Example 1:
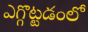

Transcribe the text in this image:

ఎగ్గొట్టడంలో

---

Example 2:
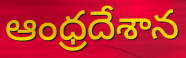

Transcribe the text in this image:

ఆంధ్రదేశాన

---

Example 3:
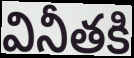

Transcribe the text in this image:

వినీతకి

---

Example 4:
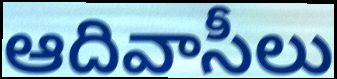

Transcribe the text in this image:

ఆదివాసీలు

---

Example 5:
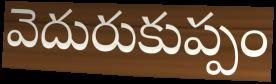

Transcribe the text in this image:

వెదురుకుప్పం